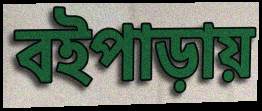
বইপাড়ায়